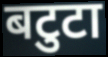
बटुटा